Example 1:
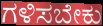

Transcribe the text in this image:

ಗಳಿಸಬೇಕು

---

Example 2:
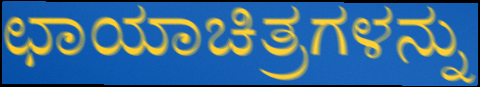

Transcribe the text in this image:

ಛಾಯಾಚಿತ್ರಗಳನ್ನು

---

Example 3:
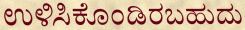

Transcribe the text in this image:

ಉಳಿಸಿಕೊಂಡಿರಬಹುದು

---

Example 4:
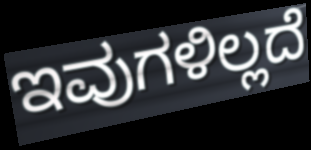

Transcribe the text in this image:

ಇವುಗಳಿಲ್ಲದೆ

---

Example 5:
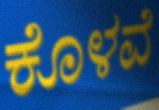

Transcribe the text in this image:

ಕೊಳವೆ